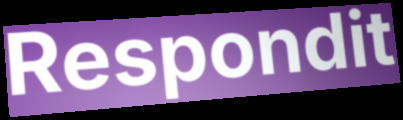
Respondit